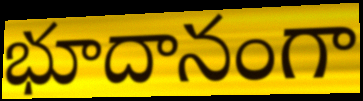
భూదానంగా